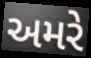
અમરે